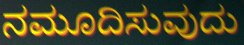
ನಮೂದಿಸುವುದು